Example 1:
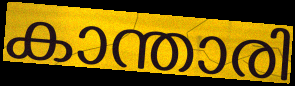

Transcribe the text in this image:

കാന്താരി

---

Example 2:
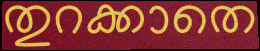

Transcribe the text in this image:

തുറക്കാതെ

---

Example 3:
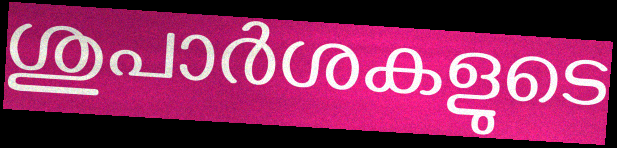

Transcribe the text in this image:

ശുപാർശകളുടെ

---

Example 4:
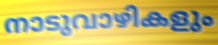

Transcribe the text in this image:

നാടുവാഴികളും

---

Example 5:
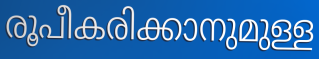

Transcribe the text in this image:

രൂപീകരിക്കാനുമുള്ള